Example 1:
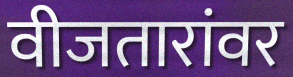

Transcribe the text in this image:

वीजतारांवर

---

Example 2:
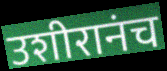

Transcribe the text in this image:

उशीरानंच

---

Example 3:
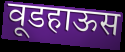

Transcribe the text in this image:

वूडहाऊस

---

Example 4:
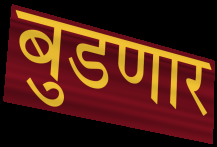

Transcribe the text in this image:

बुडणार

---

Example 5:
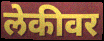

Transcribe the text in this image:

लेकीवर